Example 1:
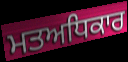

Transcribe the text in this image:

ਮਤਅਧਿਕਾਰ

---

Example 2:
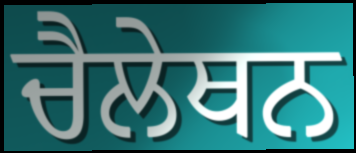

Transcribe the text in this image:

ਚੈਲੇਥਨ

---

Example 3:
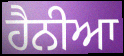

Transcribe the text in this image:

ਹੈਨੀਆ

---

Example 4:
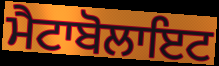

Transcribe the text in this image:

ਮੈਟਾਬੋਲਾਇਟ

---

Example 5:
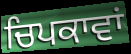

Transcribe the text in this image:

ਚਿਪਕਾਵਾਂ